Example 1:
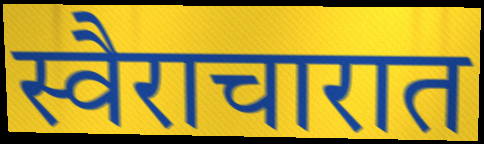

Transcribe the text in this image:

स्वैराचारात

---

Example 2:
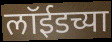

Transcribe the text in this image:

लॉईडच्या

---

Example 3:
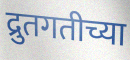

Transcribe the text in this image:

द्रुतगतीच्या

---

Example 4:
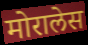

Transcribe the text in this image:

मोरालेस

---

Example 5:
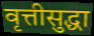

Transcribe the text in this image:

वृत्तीसुद्धा